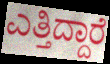
ಎತ್ತಿದ್ದಾರೆ